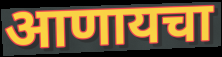
आणायचा